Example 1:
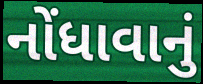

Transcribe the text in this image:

નોંધાવાનું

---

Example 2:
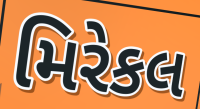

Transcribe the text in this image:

મિરેકલ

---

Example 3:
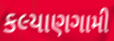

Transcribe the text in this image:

કલ્યાણગામી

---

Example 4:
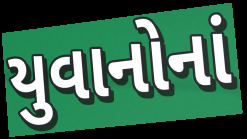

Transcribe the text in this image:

યુવાનોનાં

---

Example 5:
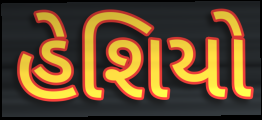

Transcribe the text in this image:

હેશિયો